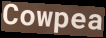
Cowpea